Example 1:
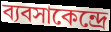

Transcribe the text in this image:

ব্যবসাকেন্দ্রে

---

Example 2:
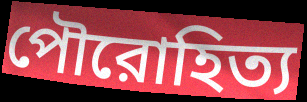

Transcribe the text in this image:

পৌরোহিত্য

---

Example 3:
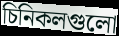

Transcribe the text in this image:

চিনিকলগুলো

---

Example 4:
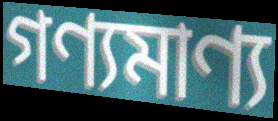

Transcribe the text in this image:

গণ্যমাণ্য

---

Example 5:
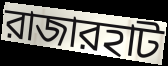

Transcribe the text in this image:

রাজারহাট